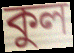
কুল